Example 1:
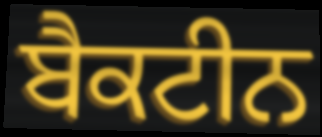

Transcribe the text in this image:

ਬੈਕਟੀਨ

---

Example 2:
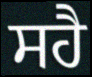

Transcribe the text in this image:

ਸਹੈ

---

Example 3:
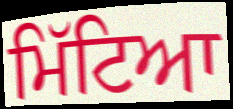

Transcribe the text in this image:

ਮਿੱਟਿਆ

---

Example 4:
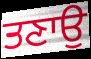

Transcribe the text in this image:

ਤਣਾਉ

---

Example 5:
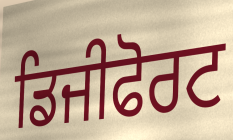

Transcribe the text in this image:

ਡਿਜੀਫੋਰਟ